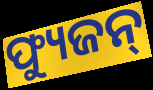
ଫ୍ୟୁଜନ୍